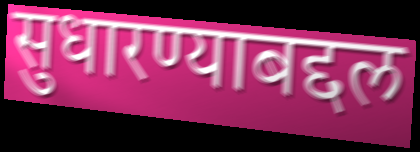
सुधारण्याबद्दल